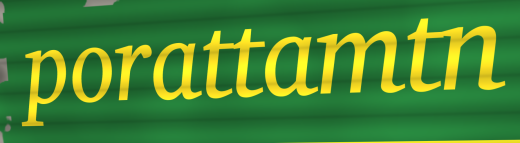
porattamtn